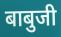
बाबुजी